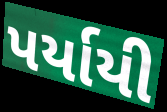
પર્યાયી